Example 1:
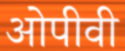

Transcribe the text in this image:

ओपीवी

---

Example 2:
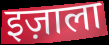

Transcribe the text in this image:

इज़ाला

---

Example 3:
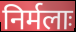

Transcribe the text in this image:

निर्मलाः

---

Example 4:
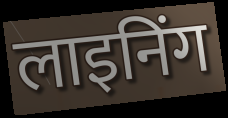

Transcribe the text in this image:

लाइनिंग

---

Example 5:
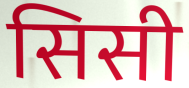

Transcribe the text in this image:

सिसी